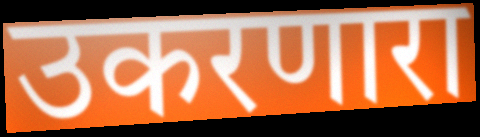
उकरणारा